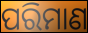
ପରିମାଣ